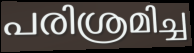
പരിശ്രമിച്ച